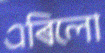
এৰিলো